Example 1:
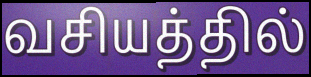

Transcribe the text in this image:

வசியத்தில்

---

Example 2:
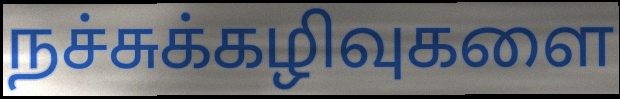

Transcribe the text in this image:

நச்சுக்கழிவுகளை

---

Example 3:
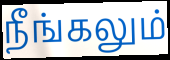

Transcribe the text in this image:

நீங்கலும்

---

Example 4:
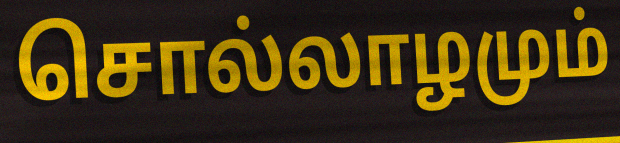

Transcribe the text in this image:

சொல்லாழமும்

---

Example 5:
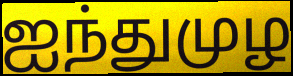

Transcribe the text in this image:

ஐந்துமுழ